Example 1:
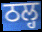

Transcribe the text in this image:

ਠਲ੍ਹ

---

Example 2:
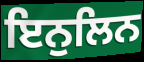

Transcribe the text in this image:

ਇਨੁਲਿਨ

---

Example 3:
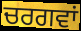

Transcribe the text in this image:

ਚਰਗਵਾਂ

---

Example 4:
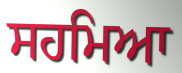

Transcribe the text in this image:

ਸਹਮਿਆ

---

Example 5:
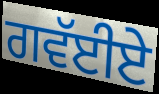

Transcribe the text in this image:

ਗਵੱਈਏ